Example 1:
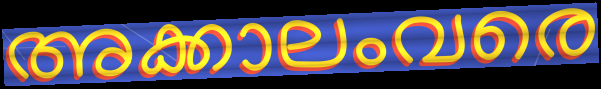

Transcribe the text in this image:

അക്കാലംവരെ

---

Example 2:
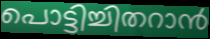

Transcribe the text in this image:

പൊട്ടിച്ചിതറാൻ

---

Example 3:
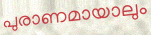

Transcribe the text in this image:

പുരാണമായാലും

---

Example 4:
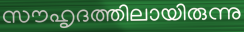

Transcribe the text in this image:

സൗഹൃദത്തിലായിരുന്നു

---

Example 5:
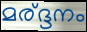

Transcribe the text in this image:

മര്ദ്ദനം